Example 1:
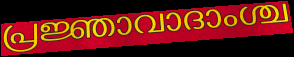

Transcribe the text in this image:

പ്രജ്ഞാവാദാംശ്ച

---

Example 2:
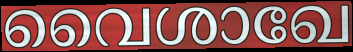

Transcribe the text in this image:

വൈശാഖേ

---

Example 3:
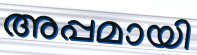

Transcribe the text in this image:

അപ്പമായി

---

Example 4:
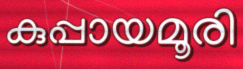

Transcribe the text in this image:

കുപ്പായമൂരി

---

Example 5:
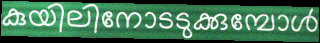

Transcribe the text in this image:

കുയിലിനോടടുക്കുമ്പോൾ